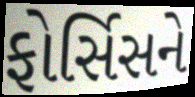
ફોર્સિસને